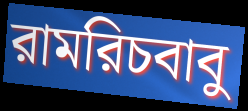
রামরিচবাবু